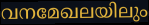
വനമേഖലയിലും